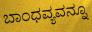
ಬಾಂಧವ್ಯವನ್ನೂ